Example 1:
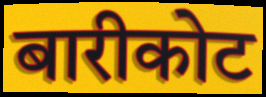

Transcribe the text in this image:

बारीकोट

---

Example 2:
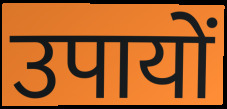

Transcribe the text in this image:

उपायों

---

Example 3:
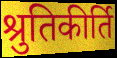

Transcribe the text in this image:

श्रुतिकीर्ति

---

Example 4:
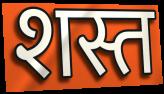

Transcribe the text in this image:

शस्त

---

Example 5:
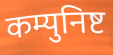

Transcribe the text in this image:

कम्युनिष्ट